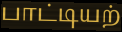
பாட்டியற்